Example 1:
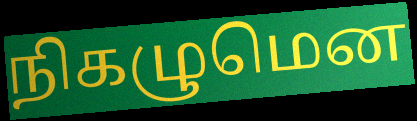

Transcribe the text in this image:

நிகழுமென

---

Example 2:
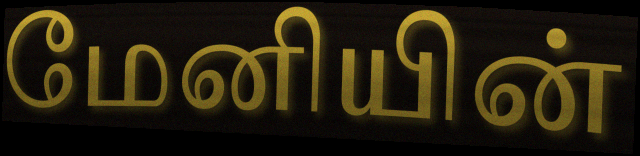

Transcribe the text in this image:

மேனியின்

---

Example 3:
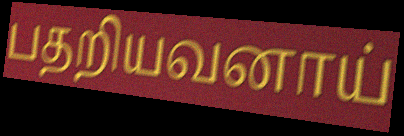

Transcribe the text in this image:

பதறியவனாய்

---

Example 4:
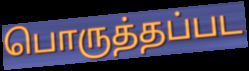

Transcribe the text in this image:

பொருத்தப்பட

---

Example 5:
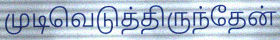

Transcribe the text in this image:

முடிவெடுத்திருந்தேன்